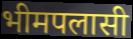
भीमपलासी